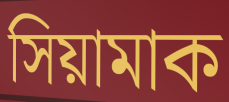
সিয়ামাক